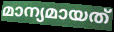
മാന്യമായത്